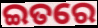
ଇତରେ